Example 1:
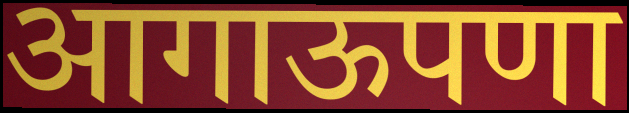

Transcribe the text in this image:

आगाऊपणा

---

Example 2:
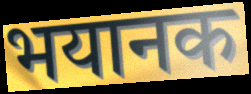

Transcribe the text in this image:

भयानक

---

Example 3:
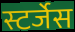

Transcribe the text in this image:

स्टर्जेस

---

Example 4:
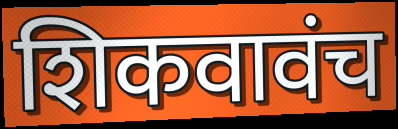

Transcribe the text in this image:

शिकवावंच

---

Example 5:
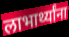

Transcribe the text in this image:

लाभार्थ्यांना